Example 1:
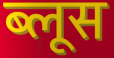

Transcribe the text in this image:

ब्लूस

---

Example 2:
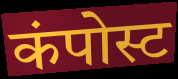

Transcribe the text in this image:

कंपोस्ट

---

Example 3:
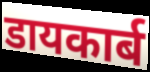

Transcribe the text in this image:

डायकार्ब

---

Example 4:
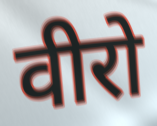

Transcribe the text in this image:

वीरो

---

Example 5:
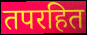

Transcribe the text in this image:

तपरहित